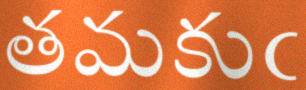
తమకుఁ